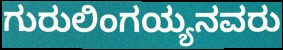
ಗುರುಲಿಂಗಯ್ಯನವರು